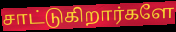
சாட்டுகிறார்களே